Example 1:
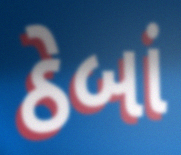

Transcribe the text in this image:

ઠેબાં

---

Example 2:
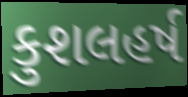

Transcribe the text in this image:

કુશલહર્ષ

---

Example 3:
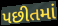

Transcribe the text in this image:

પછીતમાં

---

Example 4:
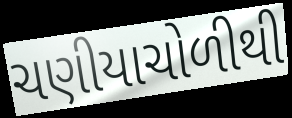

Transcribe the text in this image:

ચણીયાચોળીથી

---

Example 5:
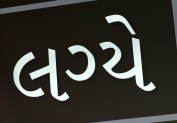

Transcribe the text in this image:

લગ્યે